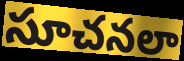
సూచనలా